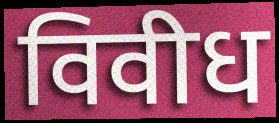
विवीध